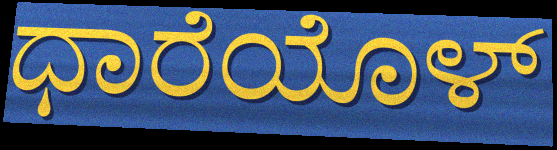
ಧಾರೆಯೊಳ್